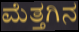
ಮೆತ್ತಗಿನ